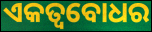
ଏକତ୍ୱବୋଧର